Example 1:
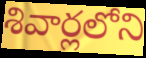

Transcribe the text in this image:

శివార్లలోని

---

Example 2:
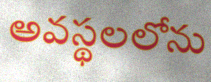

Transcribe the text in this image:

అవస్థలలోను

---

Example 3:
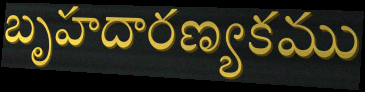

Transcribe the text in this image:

బృహదారణ్యకము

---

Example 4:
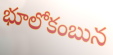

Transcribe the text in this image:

భూలోకంబున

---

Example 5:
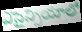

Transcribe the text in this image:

ఎసైన్సియాలో